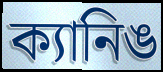
ক্যানিঙ